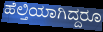
ಹೆಲ್ತಿಯಾಗಿದ್ದರೂ